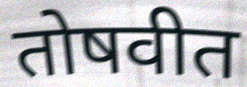
तोषवीत